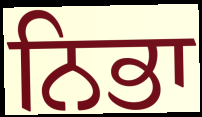
ਨਿਭਾ